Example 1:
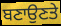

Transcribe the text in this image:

ਬਣਾਉਣਤੇ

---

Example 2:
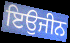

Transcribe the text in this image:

ਇਉਜੀਨ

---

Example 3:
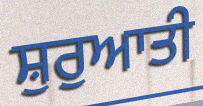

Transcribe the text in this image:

ਸ਼ੁਰੁਆਤੀ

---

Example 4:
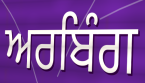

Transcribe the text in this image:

ਅਰਬਿੰਗ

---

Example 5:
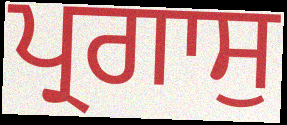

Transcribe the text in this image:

ਪ੍ਰਗਾਸੁ